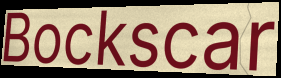
Bockscar